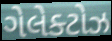
ગેલેક્ટોઝ